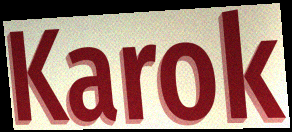
Karok